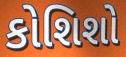
કોશિશો